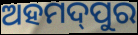
ଅହମଦ୍‌ପୁର